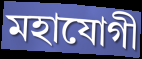
মহাযোগী